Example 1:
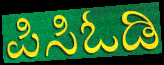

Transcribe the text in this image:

ಪಿಸಿಓಡಿ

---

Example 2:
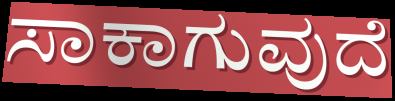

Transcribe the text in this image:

ಸಾಕಾಗುವುದೆ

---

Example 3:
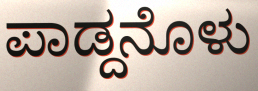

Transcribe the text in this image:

ಪಾಡ್ದನೊಳು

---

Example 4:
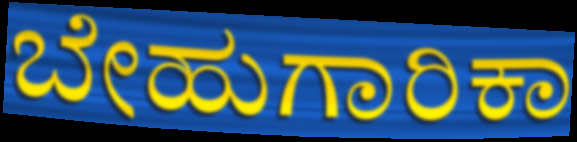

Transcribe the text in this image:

ಬೇಹುಗಾರಿಕಾ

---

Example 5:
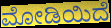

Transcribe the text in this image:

ಮೋಡಿಯಿದೆ